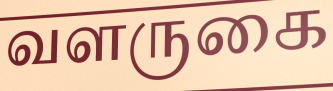
வளருகை